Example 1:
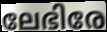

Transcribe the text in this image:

ലേഭിരേ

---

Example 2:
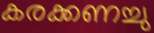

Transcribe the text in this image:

കരക്കണച്ചു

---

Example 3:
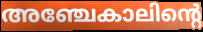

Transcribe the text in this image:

അഞ്ചേകാലിന്റെ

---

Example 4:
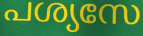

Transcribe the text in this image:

പശ്യസേ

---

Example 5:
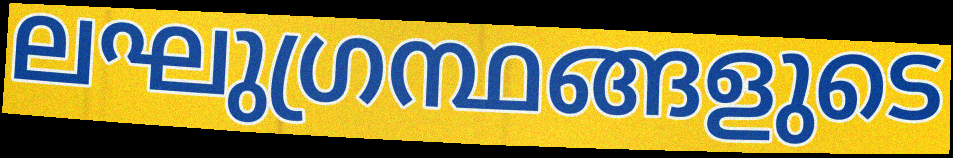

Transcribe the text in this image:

ലഘുഗ്രന്ഥങ്ങളുടെ